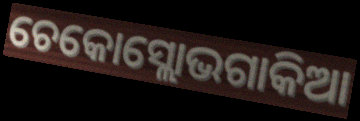
ଚେକୋସ୍ଲୋଭଗାକିଆ